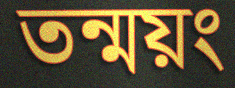
তন্ময়ং